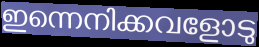
ഇന്നെനിക്കവളോടു